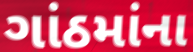
ગાંઠમાંના